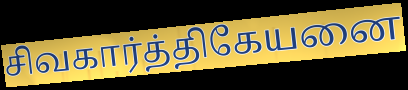
சிவகார்த்திகேயனை